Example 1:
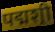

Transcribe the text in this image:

पद्मश्री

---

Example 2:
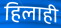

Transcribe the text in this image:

हिलाही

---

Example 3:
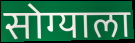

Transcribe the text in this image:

सोग्याला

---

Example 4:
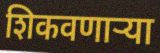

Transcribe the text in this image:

शिकवणाऱ्या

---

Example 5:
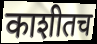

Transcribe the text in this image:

काशीतच